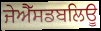
ਜੇਐੱਸਡਬਲਿਊ